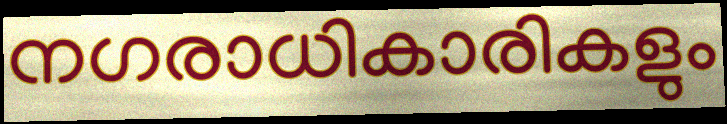
നഗരാധികാരികളും